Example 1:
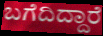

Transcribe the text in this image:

ಬಗೆದಿದ್ದಾರೆ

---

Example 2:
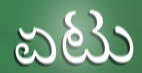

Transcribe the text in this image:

ಏಟು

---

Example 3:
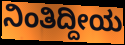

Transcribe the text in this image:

ನಿಂತಿದ್ದೀಯ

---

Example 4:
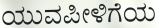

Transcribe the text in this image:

ಯುವಪೀಳಿಗೆಯ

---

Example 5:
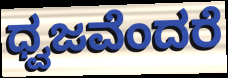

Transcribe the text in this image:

ಧ್ವಜವೆಂದರೆ